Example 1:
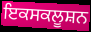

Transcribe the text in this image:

ਇਕਸਕਲੂਸ਼ਨ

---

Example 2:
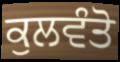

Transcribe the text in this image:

ਕੁਲਵੰਤੋ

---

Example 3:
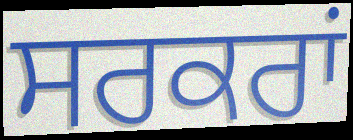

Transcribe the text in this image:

ਸਰਕਰਾਂ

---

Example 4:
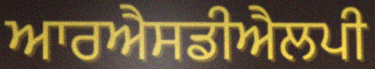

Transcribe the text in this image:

ਆਰਐਸਡੀਐਲਪੀ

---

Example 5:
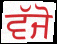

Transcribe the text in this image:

ਵੱਜੋ